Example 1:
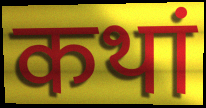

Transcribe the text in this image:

कथां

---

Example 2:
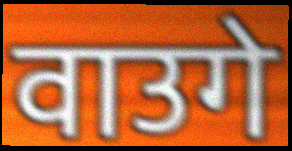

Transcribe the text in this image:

वाउगे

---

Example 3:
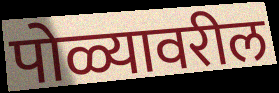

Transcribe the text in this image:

पोळ्यावरील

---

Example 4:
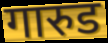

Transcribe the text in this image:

गारुड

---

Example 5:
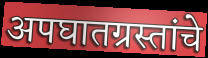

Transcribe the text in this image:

अपघातग्रस्तांचे